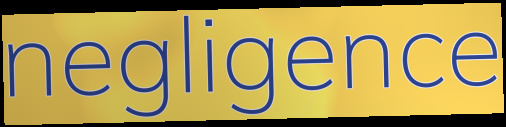
negligence